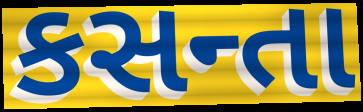
કસન્તા